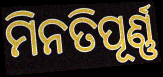
ମିନତିପୂର୍ଣ୍ଣ